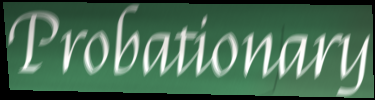
Probationary